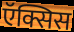
ऍक्सिस